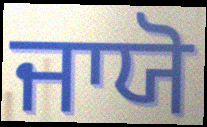
ਜਾਯੋ